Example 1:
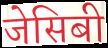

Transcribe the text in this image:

जेसिबी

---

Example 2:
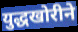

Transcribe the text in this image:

युद्धखोरीने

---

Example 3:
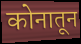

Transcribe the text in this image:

कोनातून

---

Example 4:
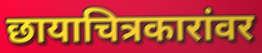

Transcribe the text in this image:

छायाचित्रकारांवर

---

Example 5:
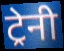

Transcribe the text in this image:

ट्रेनी